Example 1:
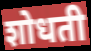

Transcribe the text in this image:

शोधती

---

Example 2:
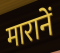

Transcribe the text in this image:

मारानें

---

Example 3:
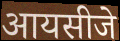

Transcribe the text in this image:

आयसीजे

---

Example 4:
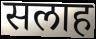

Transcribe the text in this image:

सलाह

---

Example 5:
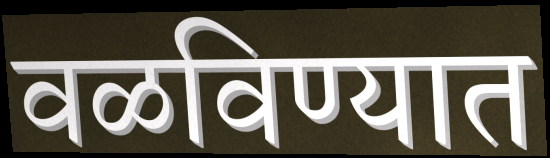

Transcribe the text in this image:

वळविण्यात